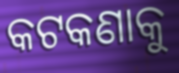
କଟକଣାକୁ